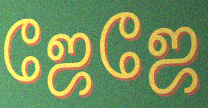
ஜேஜே